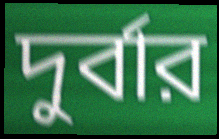
দুর্বার